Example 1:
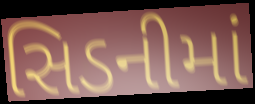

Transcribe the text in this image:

સિડનીમાં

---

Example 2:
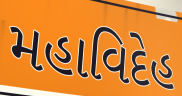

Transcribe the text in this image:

મહાવિદેહ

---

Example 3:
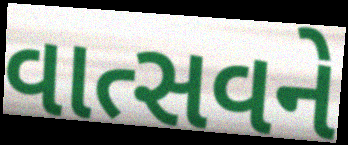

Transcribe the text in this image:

વાત્સવને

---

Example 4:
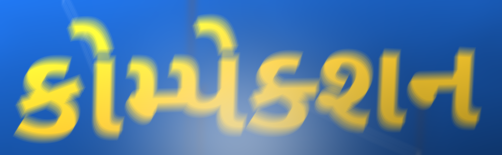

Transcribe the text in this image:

કોમ્પેક્શન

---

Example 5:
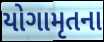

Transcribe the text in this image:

યોગામૃતના